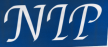
NIP